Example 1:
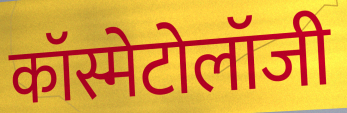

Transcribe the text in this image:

कॉस्मेटोलॉजी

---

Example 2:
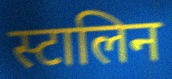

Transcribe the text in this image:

स्टालिन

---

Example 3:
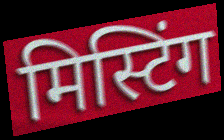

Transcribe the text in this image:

मिस्टिंग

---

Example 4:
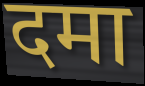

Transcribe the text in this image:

दमा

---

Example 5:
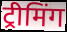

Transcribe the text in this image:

ट्रीमिंग